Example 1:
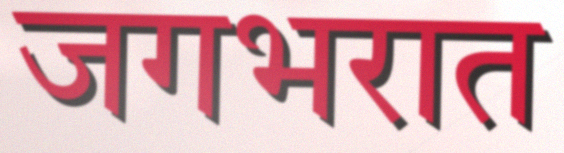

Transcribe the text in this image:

जगभरात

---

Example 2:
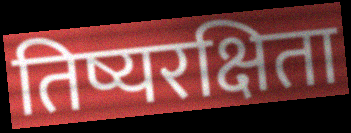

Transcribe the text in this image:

तिष्यरक्षिता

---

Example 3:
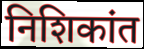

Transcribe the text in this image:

निशिकांत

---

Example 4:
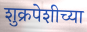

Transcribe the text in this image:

शुक्रपेशीच्या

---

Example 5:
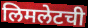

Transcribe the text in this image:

लिमलेटची